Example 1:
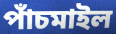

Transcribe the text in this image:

পাঁচমাইল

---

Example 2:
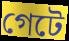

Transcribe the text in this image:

গেটে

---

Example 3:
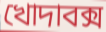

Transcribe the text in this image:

খোদাবক্স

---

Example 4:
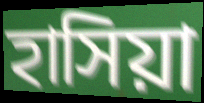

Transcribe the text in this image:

হাসিয়া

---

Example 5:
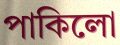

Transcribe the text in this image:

পাকিলো